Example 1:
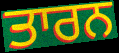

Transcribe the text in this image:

ਤਾਰਨ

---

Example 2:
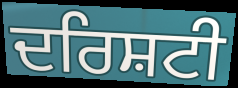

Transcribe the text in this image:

ਦਰਿਸ਼ਟੀ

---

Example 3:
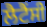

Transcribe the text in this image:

ਲੈਟੈਂਸੀ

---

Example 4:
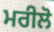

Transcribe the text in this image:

ਮਰੀਲੋ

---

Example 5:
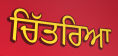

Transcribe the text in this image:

ਚਿੱਤਰਿਆ